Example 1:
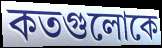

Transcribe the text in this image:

কতগুলোকে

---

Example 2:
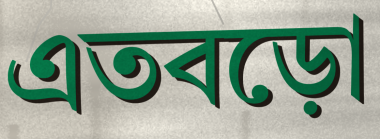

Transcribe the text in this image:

এতবড়ো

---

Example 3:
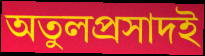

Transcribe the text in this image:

অতুলপ্রসাদই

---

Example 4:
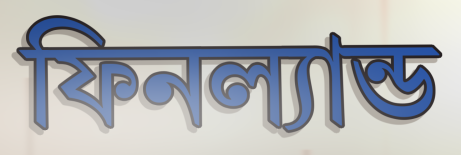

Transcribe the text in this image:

ফিনল্যান্ড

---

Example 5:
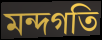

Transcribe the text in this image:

মন্দগতি